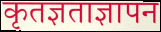
कृतज्ञताज्ञापन